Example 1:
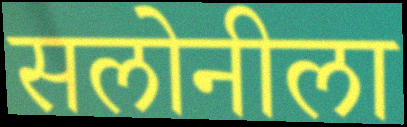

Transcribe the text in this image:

सलोनीला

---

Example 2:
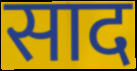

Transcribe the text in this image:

साद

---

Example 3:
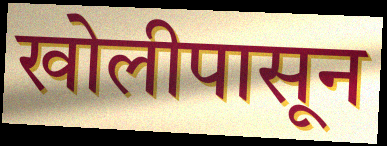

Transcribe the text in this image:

खोलीपासून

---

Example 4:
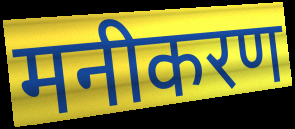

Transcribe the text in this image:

मनीकरण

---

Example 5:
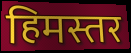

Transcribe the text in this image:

हिमस्तर